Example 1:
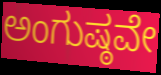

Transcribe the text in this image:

ಅಂಗುಷ್ಠವೇ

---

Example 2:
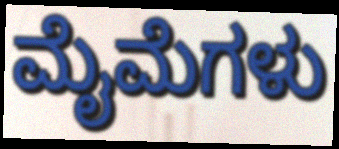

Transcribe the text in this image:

ಮೈಮೆಗಳು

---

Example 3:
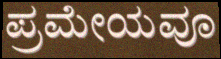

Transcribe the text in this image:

ಪ್ರಮೇಯವೂ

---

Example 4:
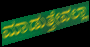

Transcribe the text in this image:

ಮಾಡುತ್ತೇವಲ್ಲಾ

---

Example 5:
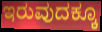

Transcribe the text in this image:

ಇರುವುದಕ್ಕೂ